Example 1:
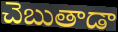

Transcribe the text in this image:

చెబుతాడా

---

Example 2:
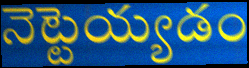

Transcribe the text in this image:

నెట్టెయ్యడం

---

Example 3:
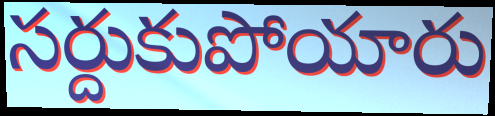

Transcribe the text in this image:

సర్దుకుపోయారు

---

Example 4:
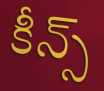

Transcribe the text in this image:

కీన్స్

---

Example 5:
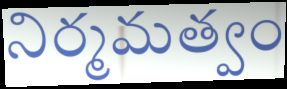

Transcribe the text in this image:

నిర్మమత్వం